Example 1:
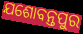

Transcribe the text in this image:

ଯଶୋବନ୍ତପୁର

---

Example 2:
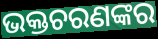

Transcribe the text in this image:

ଭକ୍ତଚରଣଙ୍କର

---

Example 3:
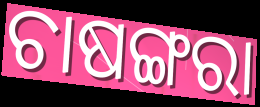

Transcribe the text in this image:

ଚାଷଙ୍ଗରା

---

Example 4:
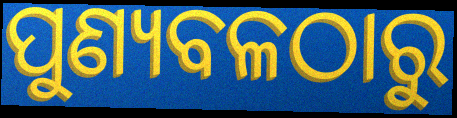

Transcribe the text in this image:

ପୁଣ୍ୟବଳଠାରୁ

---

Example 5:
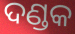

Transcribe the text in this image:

ଦଣ୍ଡକ